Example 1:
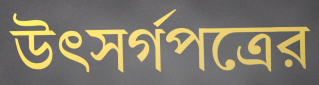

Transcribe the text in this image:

উৎসর্গপত্রের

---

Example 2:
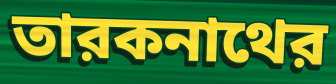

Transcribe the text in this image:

তারকনাথের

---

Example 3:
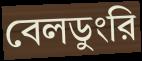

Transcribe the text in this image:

বেলডুংরি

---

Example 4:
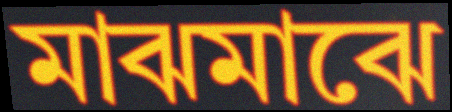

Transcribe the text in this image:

মাঝমাঝে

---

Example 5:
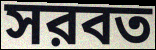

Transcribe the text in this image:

সরবত